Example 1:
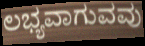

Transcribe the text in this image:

ಲಭ್ಯವಾಗುವವು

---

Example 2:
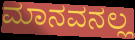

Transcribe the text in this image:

ಮಾನವನಲ್ಲ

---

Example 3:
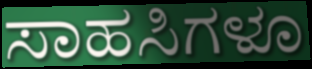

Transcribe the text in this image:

ಸಾಹಸಿಗಳೂ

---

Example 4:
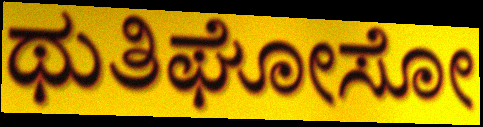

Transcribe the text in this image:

ಥುತಿಘೋಸೋ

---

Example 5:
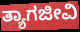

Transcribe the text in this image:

ತ್ಯಾಗಜೀವಿ